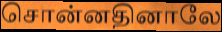
சொன்னதினாலே